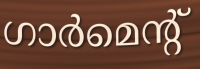
ഗാർമെന്റ്